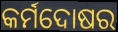
କର୍ମଦୋଷର